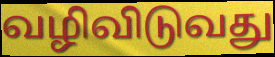
வழிவிடுவது